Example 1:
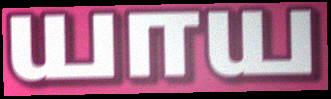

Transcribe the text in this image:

யாய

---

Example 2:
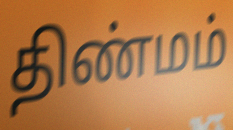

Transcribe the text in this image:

திண்மம்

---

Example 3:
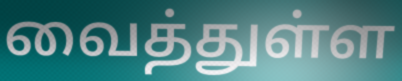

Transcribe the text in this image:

வைத்துள்ள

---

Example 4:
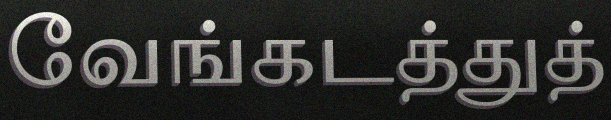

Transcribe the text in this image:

வேங்கடத்துத்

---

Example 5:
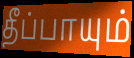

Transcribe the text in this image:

தீப்பாயும்